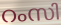
റംസി